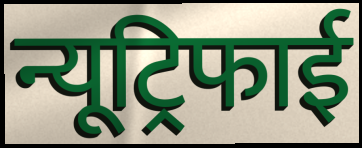
न्यूट्रिफाई